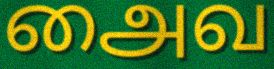
அைவ